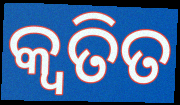
କ୍ୱତିତ